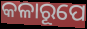
କଳାରୂପେ